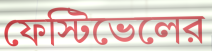
ফেস্টিভেলের